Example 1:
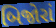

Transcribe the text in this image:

બિજોરાં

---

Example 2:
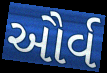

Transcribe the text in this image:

ઔર્વ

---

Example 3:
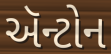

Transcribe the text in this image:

ઍન્ટોન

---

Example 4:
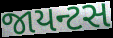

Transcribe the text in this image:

જાયન્ટસ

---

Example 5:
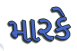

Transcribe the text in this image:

મારકે